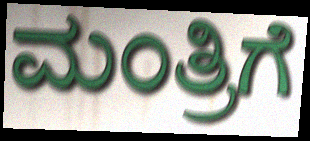
ಮಂತ್ರಿಗೆ